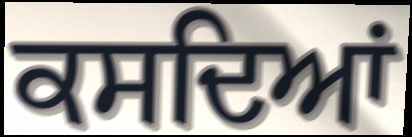
ਕਸਦਿਆਂ